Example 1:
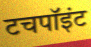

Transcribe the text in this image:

टचपॉइंट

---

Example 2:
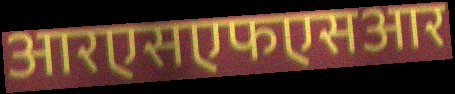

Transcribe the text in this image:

आरएसएफएसआर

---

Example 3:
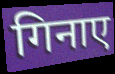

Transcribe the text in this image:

गिनाए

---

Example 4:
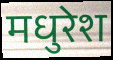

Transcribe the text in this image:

मधुरेश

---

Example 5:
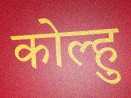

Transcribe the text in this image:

कोल्हु